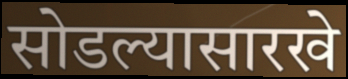
सोडल्यासारखे